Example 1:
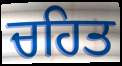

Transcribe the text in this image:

ਚਹਿਤ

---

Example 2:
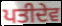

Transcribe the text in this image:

ਪਤੀਦੇਵ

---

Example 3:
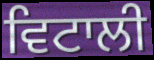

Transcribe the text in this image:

ਵਿਟਾਲੀ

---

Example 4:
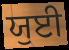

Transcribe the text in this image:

ਯੁਈ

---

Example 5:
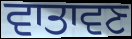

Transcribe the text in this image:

ਵਾਤਾਵਣ